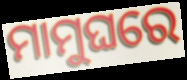
ମାମୁଘରେ